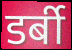
डर्बी